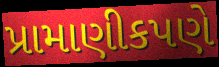
પ્રામાણીકપણે